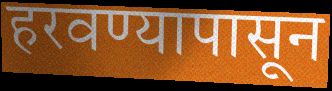
हरवण्यापासून